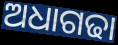
ଅଧାଗଢା